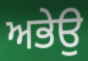
ਅਭੇਉ